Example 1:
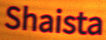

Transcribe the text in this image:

Shaista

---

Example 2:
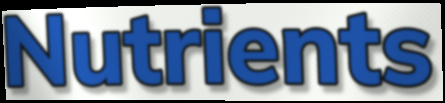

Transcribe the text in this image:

Nutrients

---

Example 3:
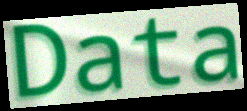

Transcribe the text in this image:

Data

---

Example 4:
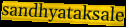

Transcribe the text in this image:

sandhyataksale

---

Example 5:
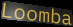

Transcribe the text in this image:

Loomba